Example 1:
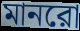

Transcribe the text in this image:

মানরো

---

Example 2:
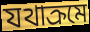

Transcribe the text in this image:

যথাক্রমে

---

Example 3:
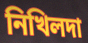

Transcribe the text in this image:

নিখিলদা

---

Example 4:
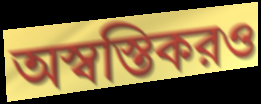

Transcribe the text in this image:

অস্বস্তিকরও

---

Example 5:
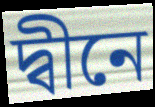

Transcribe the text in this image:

দ্বীনে